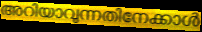
അറിയാവുന്നതിനേക്കാൾ